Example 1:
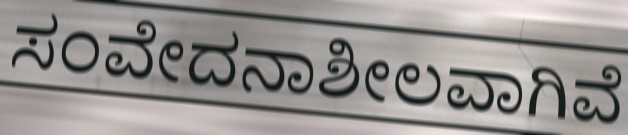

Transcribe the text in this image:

ಸಂವೇದನಾಶೀಲವಾಗಿವೆ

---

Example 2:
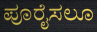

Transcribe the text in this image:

ಪೂರೈಸಲೂ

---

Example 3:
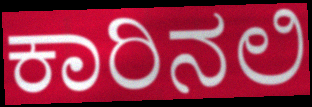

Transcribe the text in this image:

ಕಾರಿನಲಿ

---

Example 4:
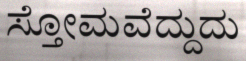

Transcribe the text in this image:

ಸ್ತೋಮವೆದ್ದುದು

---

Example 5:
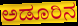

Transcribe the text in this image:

ಅಡೂರಿನ